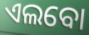
ଏଲବୋ